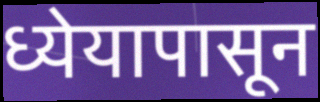
ध्येयापासून